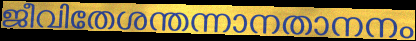
ജീവിതേശന്തന്നാനതാനനം